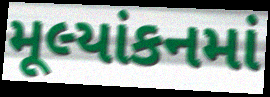
મૂલ્યાંકનમાં